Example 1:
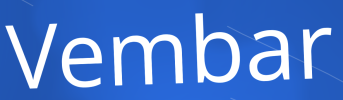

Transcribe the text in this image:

Vembar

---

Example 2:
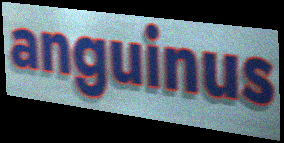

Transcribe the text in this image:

anguinus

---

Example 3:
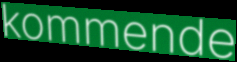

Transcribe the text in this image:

kommende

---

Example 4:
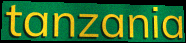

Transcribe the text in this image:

tanzania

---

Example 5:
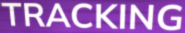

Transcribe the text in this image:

TRACKING